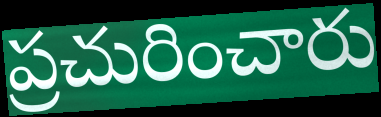
ప్రచురించారు